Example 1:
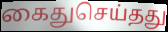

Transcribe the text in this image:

கைதுசெய்தது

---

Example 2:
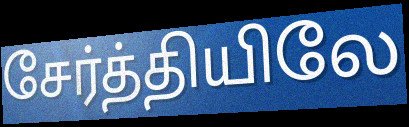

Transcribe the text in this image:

சேர்த்தியிலே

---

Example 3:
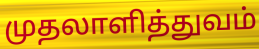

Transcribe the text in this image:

முதலாளித்துவம்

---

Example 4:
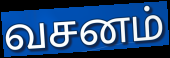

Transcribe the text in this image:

வசனம்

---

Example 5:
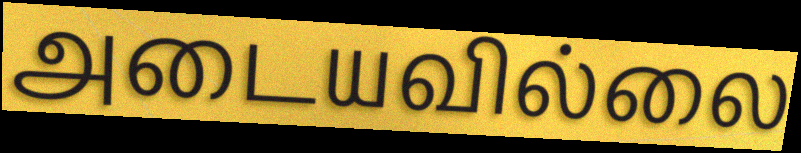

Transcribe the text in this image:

அடையவில்லை